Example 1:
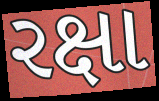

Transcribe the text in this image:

રક્ષા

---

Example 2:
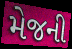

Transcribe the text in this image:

મેજની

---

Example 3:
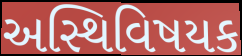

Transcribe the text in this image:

અસ્થિવિષયક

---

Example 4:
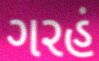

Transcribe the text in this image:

ગરહં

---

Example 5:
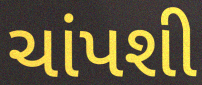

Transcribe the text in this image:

ચાંપશી